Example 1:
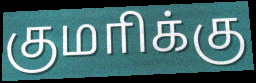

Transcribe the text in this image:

குமரிக்கு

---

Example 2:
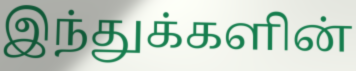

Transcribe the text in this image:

இந்துக்களின்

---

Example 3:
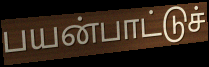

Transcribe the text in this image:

பயன்பாட்டுச்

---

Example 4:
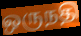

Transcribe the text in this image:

ஒருநதி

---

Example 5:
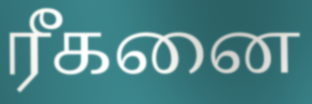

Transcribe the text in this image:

ரீகனை